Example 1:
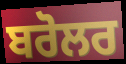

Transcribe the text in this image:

ਬਰੋਲਰ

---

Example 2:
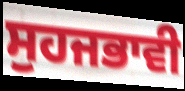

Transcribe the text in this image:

ਸੁਹਜਭਾਵੀ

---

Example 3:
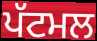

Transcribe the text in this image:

ਪੱਟਮਲ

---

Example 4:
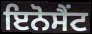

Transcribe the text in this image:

ਇਨੋਸੈਂਟ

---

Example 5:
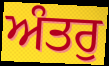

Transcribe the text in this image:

ਅੰਤਰੁ